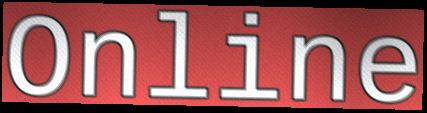
Online